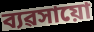
ব্যৱসায়ো